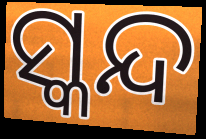
ସ୍କନ୍ଦ